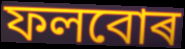
ফলবোৰ